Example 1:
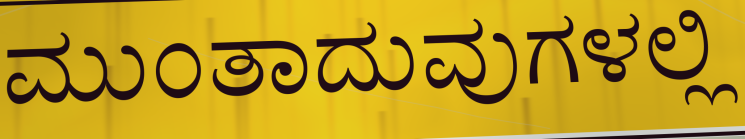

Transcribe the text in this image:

ಮುಂತಾದುವುಗಳಲ್ಲಿ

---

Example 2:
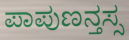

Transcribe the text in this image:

ಪಾಪುಣನ್ತಸ್ಸ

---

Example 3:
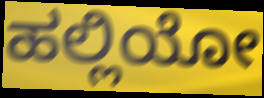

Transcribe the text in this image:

ಹಲ್ಲಿಯೋ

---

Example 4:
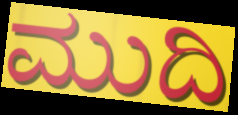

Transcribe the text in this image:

ಮುದಿ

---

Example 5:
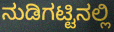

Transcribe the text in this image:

ನುಡಿಗಟ್ಟಿನಲ್ಲಿ